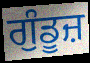
ਗੁੰਡੂਜ਼